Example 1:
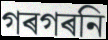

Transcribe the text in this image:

গৰগৰনি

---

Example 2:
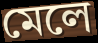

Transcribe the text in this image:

মেলে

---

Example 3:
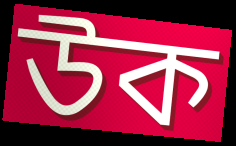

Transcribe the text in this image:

উক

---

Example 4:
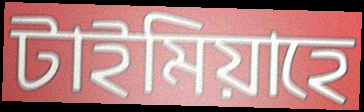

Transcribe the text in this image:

টাইমিয়াহে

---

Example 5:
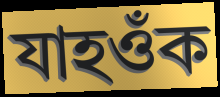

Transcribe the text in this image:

যাহওঁক